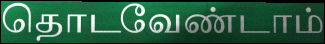
தொடவேண்டாம்